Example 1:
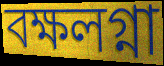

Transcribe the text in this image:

বক্ষলগ্না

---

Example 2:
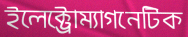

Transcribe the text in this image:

ইলেক্ট্রোম্যাগনেটিক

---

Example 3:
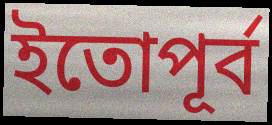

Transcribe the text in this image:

ইতোপূর্ব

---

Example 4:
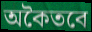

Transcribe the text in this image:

অকৈতবে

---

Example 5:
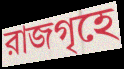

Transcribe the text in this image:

রাজগৃহে